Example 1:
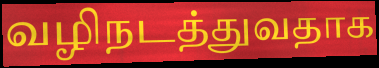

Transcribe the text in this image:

வழிநடத்துவதாக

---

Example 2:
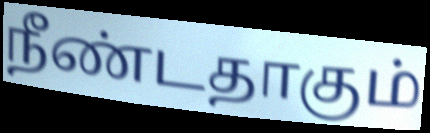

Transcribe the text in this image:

நீண்டதாகும்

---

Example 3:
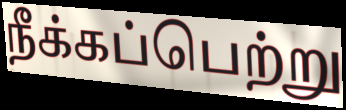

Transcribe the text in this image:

நீக்கப்பெற்று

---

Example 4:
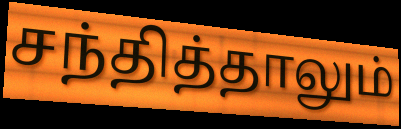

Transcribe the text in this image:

சந்தித்தாலும்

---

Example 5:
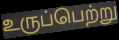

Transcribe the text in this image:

உருப்பெற்று